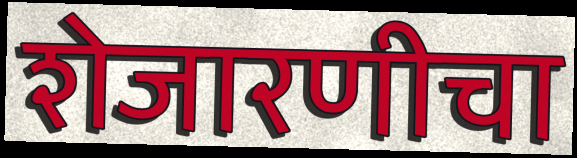
शेजारणीचा